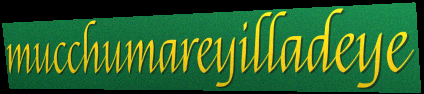
mucchumareyilladeye